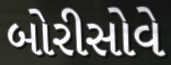
બોરીસોવે